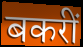
बकरीं